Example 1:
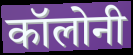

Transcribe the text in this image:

कॉलोनी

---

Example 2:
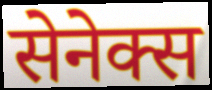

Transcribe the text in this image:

सेनेक्स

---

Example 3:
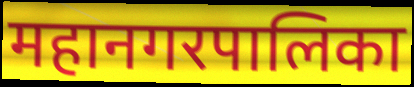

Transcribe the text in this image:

महानगरपालिका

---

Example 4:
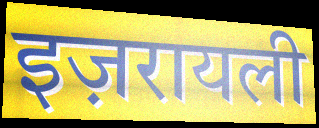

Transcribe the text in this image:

इज़रायली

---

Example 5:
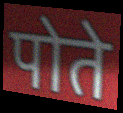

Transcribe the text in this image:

पोते